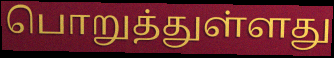
பொறுத்துள்ளது